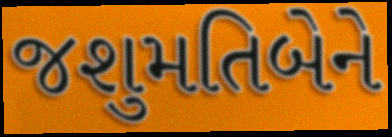
જશુમતિબેને